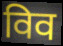
विव